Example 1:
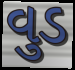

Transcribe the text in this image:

વુડ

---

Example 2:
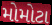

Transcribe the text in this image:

મોમોટા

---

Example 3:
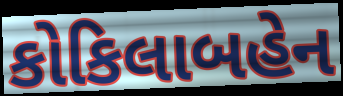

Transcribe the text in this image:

કોકિલાબહેન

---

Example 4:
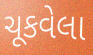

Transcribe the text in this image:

ચૂકવેલા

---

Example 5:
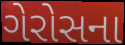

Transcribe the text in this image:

ગેરોસના